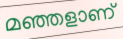
മഞ്ഞളാണ്